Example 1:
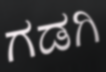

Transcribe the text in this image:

ಗಡಗಿ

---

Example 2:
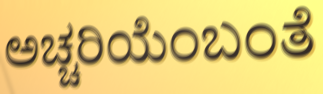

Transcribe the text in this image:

ಅಚ್ಚರಿಯೆಂಬಂತೆ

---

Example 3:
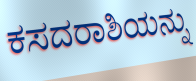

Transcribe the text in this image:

ಕಸದರಾಶಿಯನ್ನು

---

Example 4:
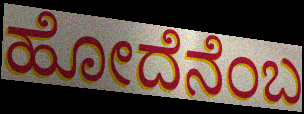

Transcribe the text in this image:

ಹೋದೆನೆಂಬ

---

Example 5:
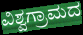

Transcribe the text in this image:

ವಿಶ್ವಗ್ರಾಮದ